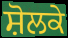
ਸ਼ੋਲਕੇ